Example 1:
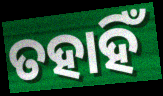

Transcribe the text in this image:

ତହାହିଁ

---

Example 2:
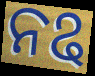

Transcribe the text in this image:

ନୡ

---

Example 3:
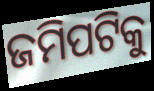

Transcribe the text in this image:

ଜମିପଟିକୁ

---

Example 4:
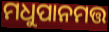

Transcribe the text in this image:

ମଧୁପାନମତ୍ତ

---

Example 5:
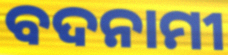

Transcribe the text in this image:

ବଦନାମୀ